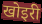
खोइरी